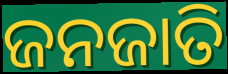
ଜନଜାତି